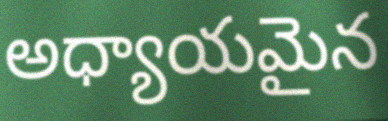
అధ్యాయమైన